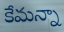
కేమన్నా